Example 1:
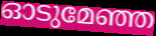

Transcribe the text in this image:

ഓടുമേഞ്ഞ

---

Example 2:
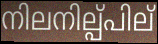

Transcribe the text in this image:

നിലനില്പ്പില്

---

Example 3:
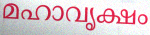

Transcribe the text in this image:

മഹാവൃക്ഷം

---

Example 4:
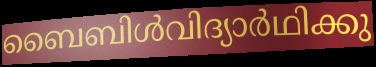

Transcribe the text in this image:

ബൈബിൾവിദ്യാർഥിക്കു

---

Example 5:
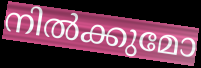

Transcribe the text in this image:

നിൽക്കുമോ